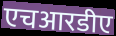
एचआरडीए